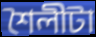
শৈলীটা